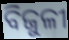
ବିଜୁଳୀ